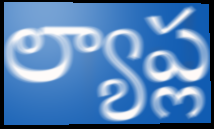
ల్యాప్ల